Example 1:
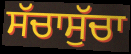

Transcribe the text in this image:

ਸੱਚਾਸੁੱਚਾ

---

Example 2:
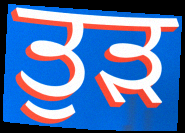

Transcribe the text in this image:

ਤੁੜ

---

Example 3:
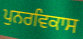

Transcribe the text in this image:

ਪੁਨਰਵਿਕਾਸ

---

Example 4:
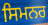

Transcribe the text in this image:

ਸਿਮਨਰ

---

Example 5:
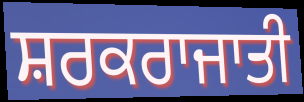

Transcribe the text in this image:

ਸ਼ਰਕਰਾਜਾਤੀ